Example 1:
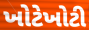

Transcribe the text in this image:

ખોટેખોટી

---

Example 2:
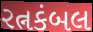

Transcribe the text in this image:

રત્નકંબલ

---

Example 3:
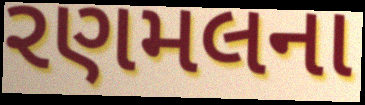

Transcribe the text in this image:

રણમલના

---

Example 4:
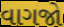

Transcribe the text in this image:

વાગજો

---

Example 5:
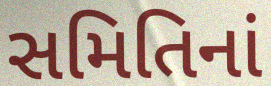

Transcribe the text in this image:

સમિતિનાં